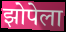
झोपेला